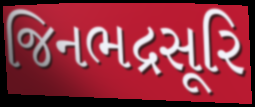
જિનભદ્રસૂરિ